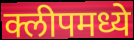
क्लीपमध्ये